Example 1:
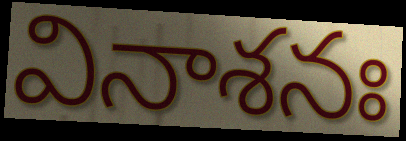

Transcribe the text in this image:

వినాశనః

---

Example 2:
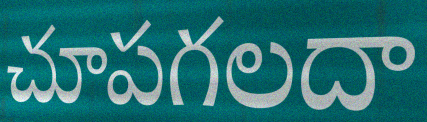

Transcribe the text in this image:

చూపగలదా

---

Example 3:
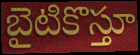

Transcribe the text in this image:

బైటికొస్తూ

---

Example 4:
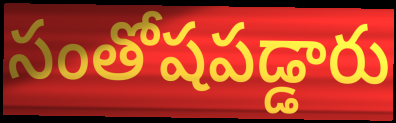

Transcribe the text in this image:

సంతోషపడ్డారు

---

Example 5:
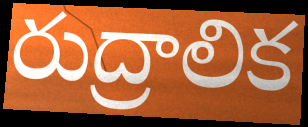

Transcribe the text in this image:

రుద్రాలిక